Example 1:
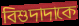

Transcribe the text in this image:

বিশুদাদাকে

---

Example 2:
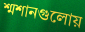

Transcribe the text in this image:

শ্মশানগুলোয়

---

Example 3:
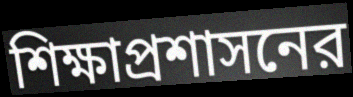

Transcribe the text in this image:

শিক্ষাপ্রশাসনের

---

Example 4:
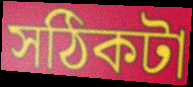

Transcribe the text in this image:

সঠিকটা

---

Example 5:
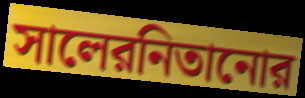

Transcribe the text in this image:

সালেরনিতানোর